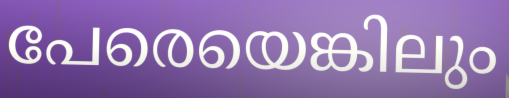
പേരെയെങ്കിലും